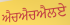
ਐਚਐਚਐਲਏ